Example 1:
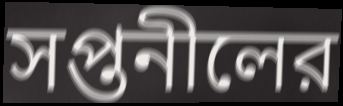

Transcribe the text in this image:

সপ্তনীলের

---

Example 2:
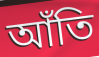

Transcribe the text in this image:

আঁতি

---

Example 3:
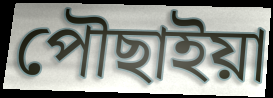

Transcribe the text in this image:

পৌছাইয়া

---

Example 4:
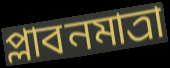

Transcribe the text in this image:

প্লাবনমাত্রা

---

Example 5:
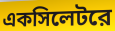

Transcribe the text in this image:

একসিলেটরে